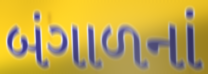
બંગાળનાં